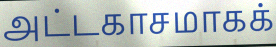
அட்டகாசமாகக்